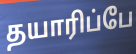
தயாரிப்பே